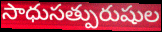
సాధుసత్పురుషుల